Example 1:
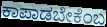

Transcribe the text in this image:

ಕಾಪಾಡಬೇಕೆಂಬ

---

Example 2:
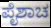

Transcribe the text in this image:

ಪೈಶಾಚ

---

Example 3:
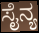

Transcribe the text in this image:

ಸೈನ್ಯ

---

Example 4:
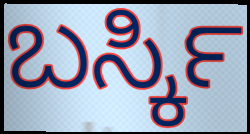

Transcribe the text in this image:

ಬರ್ಸ್ಕಿ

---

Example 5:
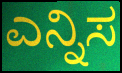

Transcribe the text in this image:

ಎನ್ನಿಸ